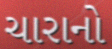
ચારાનો